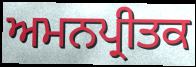
ਅਮਨਪ੍ਰੀਤਕ